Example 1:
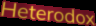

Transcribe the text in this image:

Heterodox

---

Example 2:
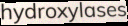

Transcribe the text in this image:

hydroxylases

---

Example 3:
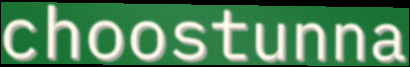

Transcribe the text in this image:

choostunna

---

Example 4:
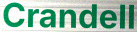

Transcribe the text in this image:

Crandell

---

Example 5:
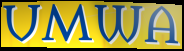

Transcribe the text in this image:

UMWA